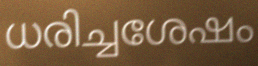
ധരിച്ചശേഷം